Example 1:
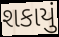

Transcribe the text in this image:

શકાયું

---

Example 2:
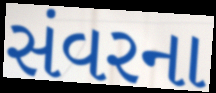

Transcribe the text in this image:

સંવરના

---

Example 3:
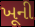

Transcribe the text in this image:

ખૂની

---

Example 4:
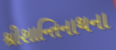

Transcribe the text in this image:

શ્રીશાન્તિનાથના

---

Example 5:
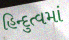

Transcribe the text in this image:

હિન્દુત્વમાં